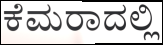
ಕೆಮರಾದಲ್ಲಿ